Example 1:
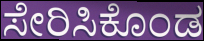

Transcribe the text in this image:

ಸೇರಿಸಿಕೊಂಡ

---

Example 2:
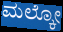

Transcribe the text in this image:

ಮಲ್ಕೋ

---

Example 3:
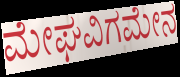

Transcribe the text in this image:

ಮೇಘವಿಗಮೇನ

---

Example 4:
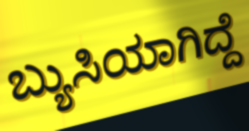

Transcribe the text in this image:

ಬ್ಯುಸಿಯಾಗಿದ್ದೆ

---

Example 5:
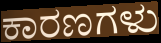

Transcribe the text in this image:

ಕಾರಣಗಳು